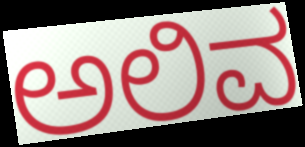
ಅಲಿವ